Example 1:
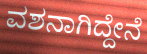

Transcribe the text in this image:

ವಶನಾಗಿದ್ದೇನೆ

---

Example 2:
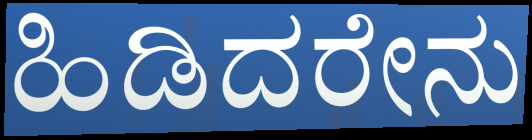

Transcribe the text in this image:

ಹಿಡಿದರೇನು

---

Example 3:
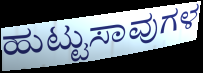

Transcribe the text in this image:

ಹುಟ್ಟುಸಾವುಗಳ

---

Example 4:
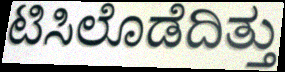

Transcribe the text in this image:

ಟಿಸಿಲೊಡೆದಿತ್ತು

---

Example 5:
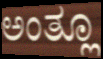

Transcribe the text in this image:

ಅಂತ್ಲೂ